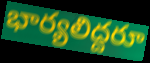
భార్యలిద్దరూ